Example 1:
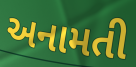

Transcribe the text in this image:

અનામતી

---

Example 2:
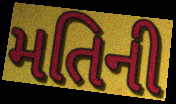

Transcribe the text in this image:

મતિની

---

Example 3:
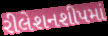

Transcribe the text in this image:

રીલેશનશીપમાં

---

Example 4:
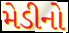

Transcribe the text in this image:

મેડીનો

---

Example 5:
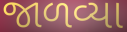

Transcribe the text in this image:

જાળવ્યા